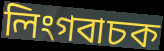
লিংগবাচক